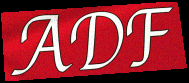
ADF